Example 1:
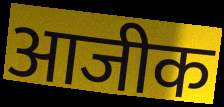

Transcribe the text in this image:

आजीक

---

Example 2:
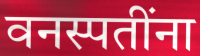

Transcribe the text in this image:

वनस्‍पतींना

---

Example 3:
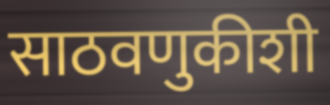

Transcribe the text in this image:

साठवणुकीशी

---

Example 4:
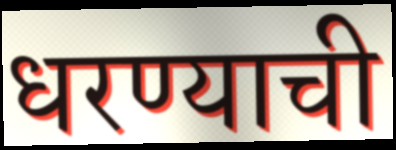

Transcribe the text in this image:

धरण्याची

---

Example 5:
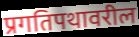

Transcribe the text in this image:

प्रगतिपथावरील